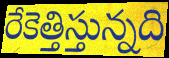
రేకెత్తిస్తున్నది